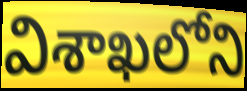
విశాఖలోని